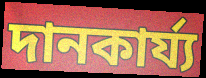
দানকার্য্য